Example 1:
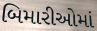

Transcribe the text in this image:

બિમારીઓમાં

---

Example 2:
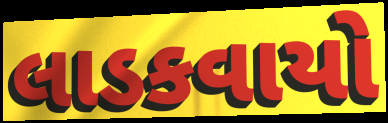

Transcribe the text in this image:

લાડકવાયો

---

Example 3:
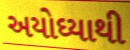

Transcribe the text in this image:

અયોઘ્યાથી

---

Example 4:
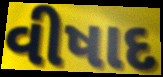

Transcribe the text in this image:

વીષાદ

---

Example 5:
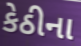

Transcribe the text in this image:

કેઠીના